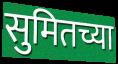
सुमितच्या